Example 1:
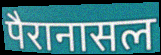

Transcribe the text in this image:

पैरानासल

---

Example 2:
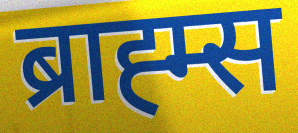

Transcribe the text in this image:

ब्राह्म्स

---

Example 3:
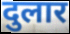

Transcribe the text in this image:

दुलार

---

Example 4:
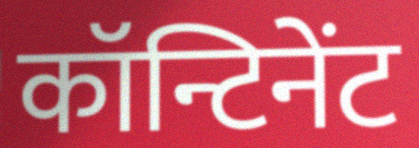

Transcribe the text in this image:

कॉन्टिनेंट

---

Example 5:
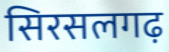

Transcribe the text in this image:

सिरसलगढ़